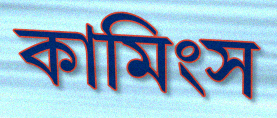
কামিংস